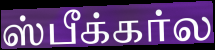
ஸ்பீக்கர்ல